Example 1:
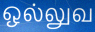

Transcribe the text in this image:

ஒல்லுவ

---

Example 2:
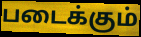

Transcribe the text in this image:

படைக்கும்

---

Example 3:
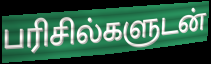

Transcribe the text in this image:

பரிசில்களுடன்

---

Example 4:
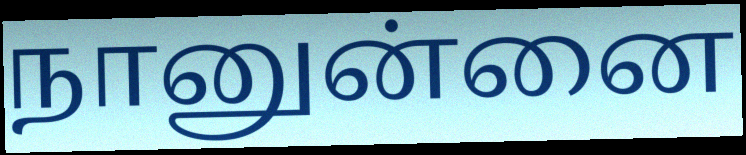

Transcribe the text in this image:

நானுன்னை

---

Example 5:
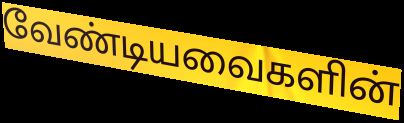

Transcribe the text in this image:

வேண்டியவைகளின்